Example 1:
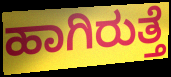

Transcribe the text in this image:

ಹಾಗಿರುತ್ತೆ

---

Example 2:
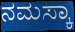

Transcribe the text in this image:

ನಮಸ್ಕಾ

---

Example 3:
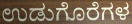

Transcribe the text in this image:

ಉಡುಗೊರೆಗಳ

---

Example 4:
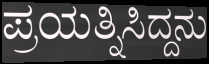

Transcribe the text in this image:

ಪ್ರಯತ್ನಿಸಿದ್ದನು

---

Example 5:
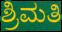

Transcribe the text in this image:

ಶ್ರಿಮತಿ